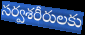
సర్వశరీరులకు